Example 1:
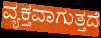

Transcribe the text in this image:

ವ್ಯಕ್ತವಾಗುತ್ತದೆ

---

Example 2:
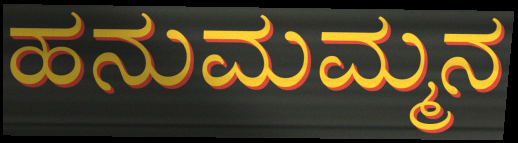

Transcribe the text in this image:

ಹನುಮಮ್ಮನ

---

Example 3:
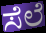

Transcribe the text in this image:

ಸೆಲೆ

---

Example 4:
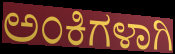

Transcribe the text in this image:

ಅಂಕಿಗಳಾಗಿ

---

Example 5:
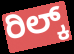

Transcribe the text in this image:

ರಿಲ್ಕ್